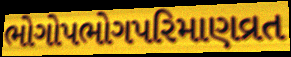
ભોગોપભોગપરિમાણવ્રત